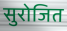
सुरोजित